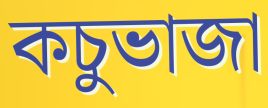
কচুভাজা